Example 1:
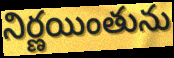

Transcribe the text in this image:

నిర్ణయింతును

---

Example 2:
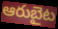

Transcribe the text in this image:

ఆరుబైట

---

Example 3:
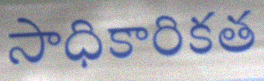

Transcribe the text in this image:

సాధికారికత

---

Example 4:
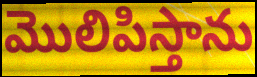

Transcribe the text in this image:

మొలిపిస్తాను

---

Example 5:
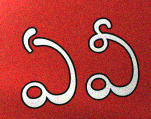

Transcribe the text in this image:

ఏవీ